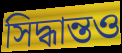
সিদ্ধান্তও